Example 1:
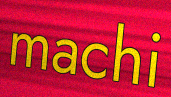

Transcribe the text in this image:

machi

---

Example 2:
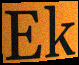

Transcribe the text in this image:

Ek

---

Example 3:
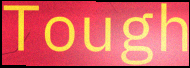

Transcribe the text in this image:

Tough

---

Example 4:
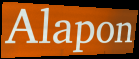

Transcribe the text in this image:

Alapon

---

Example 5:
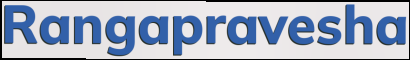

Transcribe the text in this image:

Rangapravesha